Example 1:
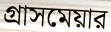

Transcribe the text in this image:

গ্রাসমেয়ার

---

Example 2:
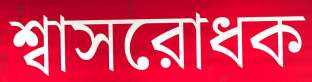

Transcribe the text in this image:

শ্বাসরোধক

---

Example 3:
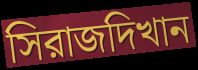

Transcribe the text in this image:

সিরাজদিখান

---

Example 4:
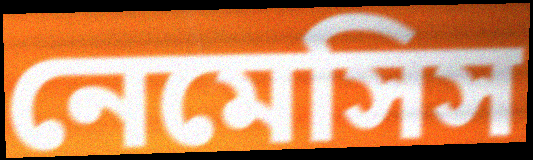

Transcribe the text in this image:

নেমেসিস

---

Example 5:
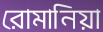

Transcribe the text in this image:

রোমানিয়া